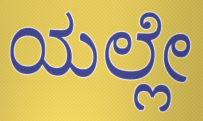
ಯಲ್ಲೇ